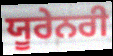
ਯੂਰੇਨਰੀ